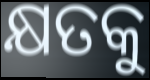
କ୍ଷତକୁ